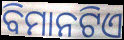
ବିମାନଟିଏ